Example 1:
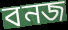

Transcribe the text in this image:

বনজ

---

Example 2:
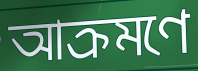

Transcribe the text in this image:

আক্ৰমণে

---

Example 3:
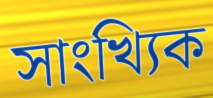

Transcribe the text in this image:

সাংখ্যিক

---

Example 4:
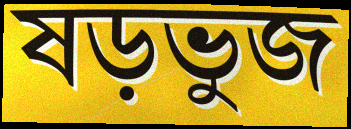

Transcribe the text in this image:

ষড়ভুজ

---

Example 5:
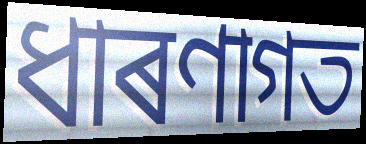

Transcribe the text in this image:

ধাৰণাগত